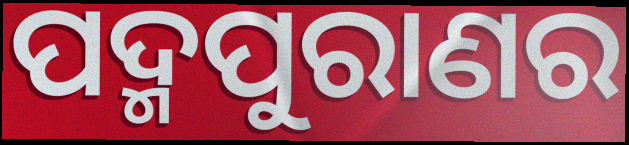
ପଦ୍ମପୁରାଣର